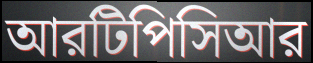
আরটিপিসিআর